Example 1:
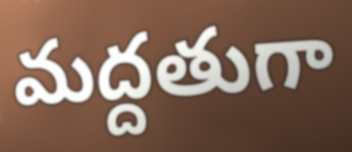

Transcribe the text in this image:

మద్దతుగా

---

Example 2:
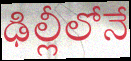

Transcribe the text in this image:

ఢిల్లీలోనే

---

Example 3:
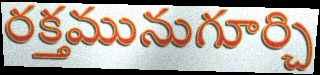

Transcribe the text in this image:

రక్తమునుగూర్చి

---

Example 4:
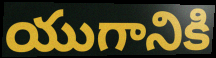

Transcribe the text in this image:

యుగానికి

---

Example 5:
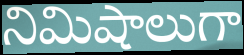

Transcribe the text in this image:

నిమిషాలుగా